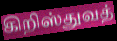
கிறிஸ்துவத்